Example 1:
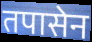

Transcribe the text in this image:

तपासेन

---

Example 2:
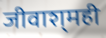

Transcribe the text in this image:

जीवाश्मही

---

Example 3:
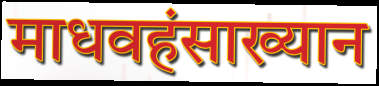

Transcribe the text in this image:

माधवहंसाख्यान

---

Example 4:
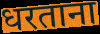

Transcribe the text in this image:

धरताना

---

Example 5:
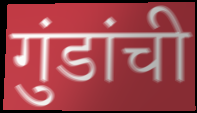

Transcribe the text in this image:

गुंडांची